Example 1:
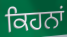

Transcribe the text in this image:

ਕਿਹਨਾਂ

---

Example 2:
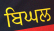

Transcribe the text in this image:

ਬਿਘਲ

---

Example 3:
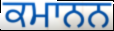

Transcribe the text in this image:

ਕਮਾਨਨ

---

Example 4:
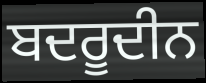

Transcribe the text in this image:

ਬਦਰੂਦੀਨ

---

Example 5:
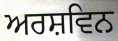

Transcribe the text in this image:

ਅਰਸ਼ਵਿਨ